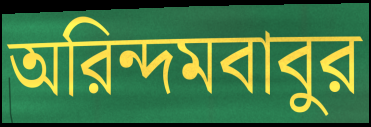
অরিন্দমবাবুর